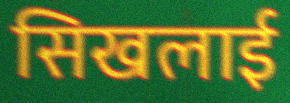
सिखलाई